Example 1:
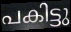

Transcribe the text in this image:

പകിട്ടു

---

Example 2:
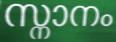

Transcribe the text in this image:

സ്നാനം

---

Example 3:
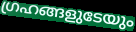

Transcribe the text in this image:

ഗ്രഹങ്ങളുടേയും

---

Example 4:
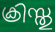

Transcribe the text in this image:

ക്രിസ്തു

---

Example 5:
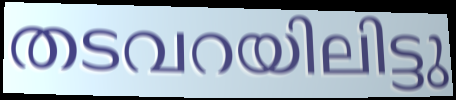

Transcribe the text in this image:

തടവറയിലിട്ടു